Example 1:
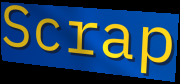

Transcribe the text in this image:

Scrap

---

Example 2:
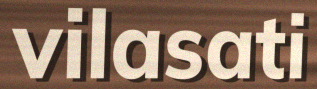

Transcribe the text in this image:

vilasati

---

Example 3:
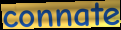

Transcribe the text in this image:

connate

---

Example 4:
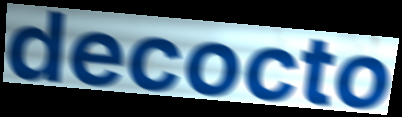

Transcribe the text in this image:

decocto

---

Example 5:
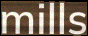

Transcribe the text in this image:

mills